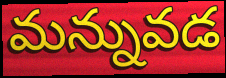
మన్నువడ